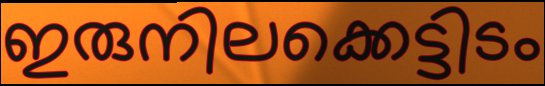
ഇരുനിലക്കെട്ടിടം